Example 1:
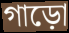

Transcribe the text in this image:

গাড়ো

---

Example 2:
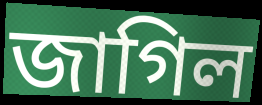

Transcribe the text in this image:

জাগিল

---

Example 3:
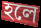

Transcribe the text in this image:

হলে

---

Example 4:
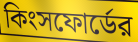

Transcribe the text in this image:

কিংসফোর্ডের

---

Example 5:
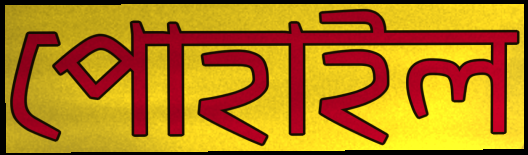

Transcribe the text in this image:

পোহাইল